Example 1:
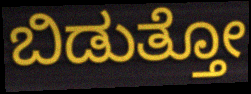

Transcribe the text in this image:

ಬಿಡುತ್ತೋ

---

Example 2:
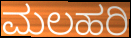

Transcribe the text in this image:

ಮಲಹರಿ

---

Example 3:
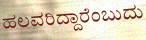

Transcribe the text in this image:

ಹಲವರಿದ್ದಾರೆಂಬುದು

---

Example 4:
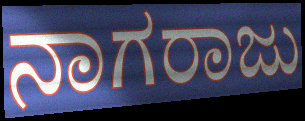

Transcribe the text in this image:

ನಾಗರಾಜು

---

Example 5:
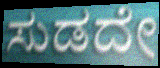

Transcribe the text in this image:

ಸುಡದೇ